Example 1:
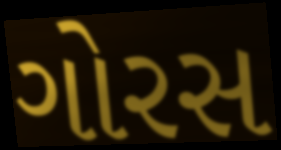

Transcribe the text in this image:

ગોરસ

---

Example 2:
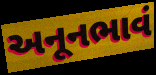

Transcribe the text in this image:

અનૂનભાવં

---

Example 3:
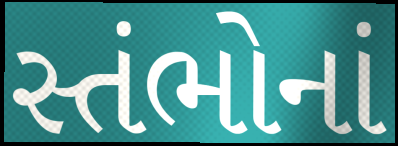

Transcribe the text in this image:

સ્તંભોનાં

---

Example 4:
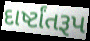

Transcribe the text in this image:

દાર્ષ્ટાંતરૂપ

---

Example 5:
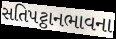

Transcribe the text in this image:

સતિપટ્ઠાનભાવના